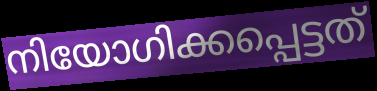
നിയോഗിക്കപ്പെട്ടത്